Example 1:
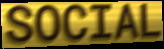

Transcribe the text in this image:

SOCIAL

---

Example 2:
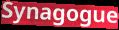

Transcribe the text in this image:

Synagogue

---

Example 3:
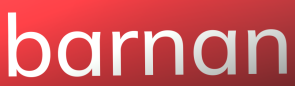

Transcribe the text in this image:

barnan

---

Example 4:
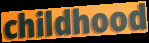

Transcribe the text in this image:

childhood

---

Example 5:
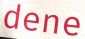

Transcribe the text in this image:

dene